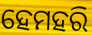
ହେମହରି